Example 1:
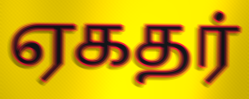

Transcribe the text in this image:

ஏகதர்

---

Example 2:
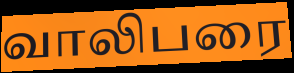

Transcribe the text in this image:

வாலிபரை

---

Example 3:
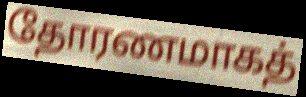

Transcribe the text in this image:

தோரணமாகத்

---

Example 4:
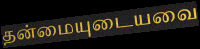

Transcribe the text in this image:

தன்மையுடையவை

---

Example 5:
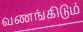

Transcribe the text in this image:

வணங்கிடும்